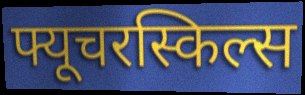
फ्यूचरस्किल्स